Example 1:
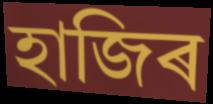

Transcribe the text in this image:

হাজিৰ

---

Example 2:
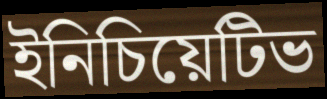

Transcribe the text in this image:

ইনিচিয়েটিভ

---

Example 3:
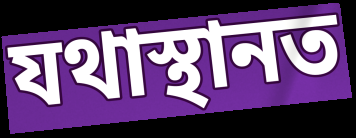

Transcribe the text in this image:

যথাস্থানত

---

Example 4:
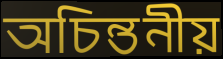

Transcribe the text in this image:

অচিন্তনীয়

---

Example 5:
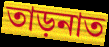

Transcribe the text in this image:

তাড়নাত